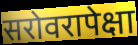
सरोवरापेक्षा